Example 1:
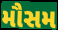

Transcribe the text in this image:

મૌસમ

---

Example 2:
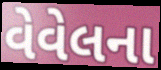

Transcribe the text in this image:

વેવેલના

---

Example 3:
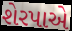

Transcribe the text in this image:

શેરપાએ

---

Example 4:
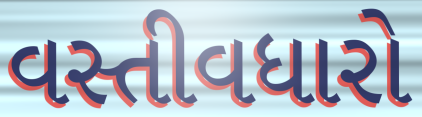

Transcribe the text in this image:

વસ્તીવધારો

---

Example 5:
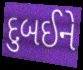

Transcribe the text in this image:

દુબઈને